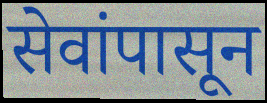
सेवांपासून